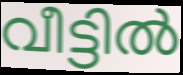
വീട്ടിൽ